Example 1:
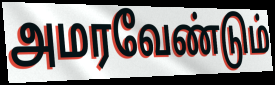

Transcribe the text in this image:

அமரவேண்டும்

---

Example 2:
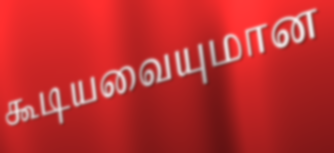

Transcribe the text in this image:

கூடியவையுமான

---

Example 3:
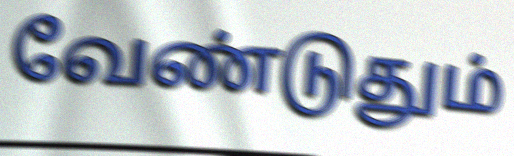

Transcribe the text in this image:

வேண்டுதும்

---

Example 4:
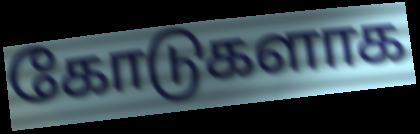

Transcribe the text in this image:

கோடுகளாக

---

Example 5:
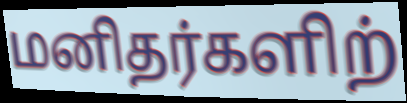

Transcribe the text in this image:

மனிதர்களிற்